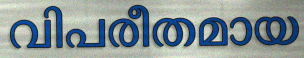
വിപരീതമായ